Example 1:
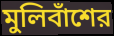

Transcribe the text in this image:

মুলিবাঁশের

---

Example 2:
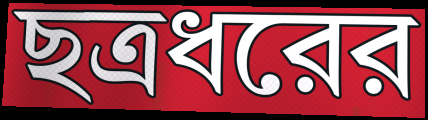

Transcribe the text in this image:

ছত্রধরের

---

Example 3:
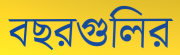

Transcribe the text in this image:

বছরগুলির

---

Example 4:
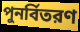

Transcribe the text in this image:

পুনর্বিতরণ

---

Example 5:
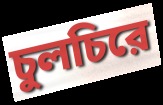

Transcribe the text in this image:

চুলচিরে